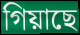
গিয়াছে